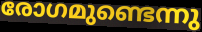
രോഗമുണ്ടെന്നു